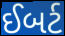
ઈબર્ટ